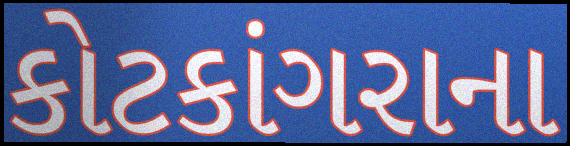
કોટકાંગરાના